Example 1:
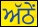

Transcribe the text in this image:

ਅੱਠੇਂ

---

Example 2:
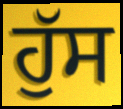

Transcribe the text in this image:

ਹੁੱਸ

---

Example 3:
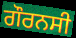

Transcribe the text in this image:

ਗੌਰਨਸੀ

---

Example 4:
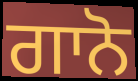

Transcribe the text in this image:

ਗਾਨੋ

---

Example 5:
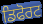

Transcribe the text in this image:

ਡਿਫੋਰਟ